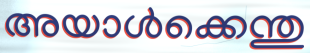
അയാൾക്കെന്തു